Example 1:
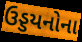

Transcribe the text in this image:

ઉડ્ડયનોના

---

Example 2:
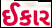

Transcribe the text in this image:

ઈકાર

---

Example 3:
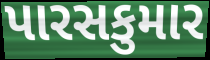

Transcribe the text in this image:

પારસકુમાર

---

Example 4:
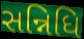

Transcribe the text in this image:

સન્નિધિ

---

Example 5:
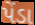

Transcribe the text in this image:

પેંડા